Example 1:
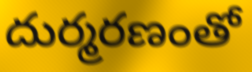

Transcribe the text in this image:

దుర్మరణంతో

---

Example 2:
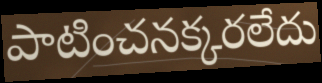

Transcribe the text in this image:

పాటించనక్కరలేదు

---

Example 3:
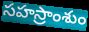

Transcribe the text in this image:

సహస్రాంశుం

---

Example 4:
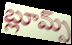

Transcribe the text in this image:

బ్లూమ్స్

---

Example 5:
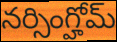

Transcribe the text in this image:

నర్సింగ్హోమ్